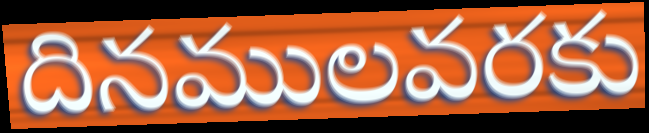
దినములవరకు